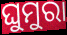
ଘୁମୁରା